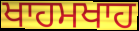
ਖਾਹਮਖਾਹ